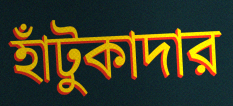
হাঁটুকাদার